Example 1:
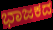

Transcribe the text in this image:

ಭಾಜಕದ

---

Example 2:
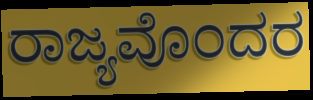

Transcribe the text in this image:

ರಾಜ್ಯವೊಂದರ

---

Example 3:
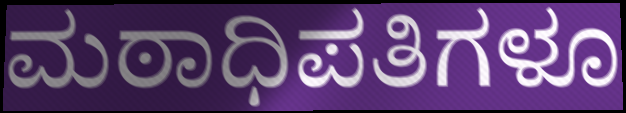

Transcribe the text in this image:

ಮಠಾಧಿಪತಿಗಳೂ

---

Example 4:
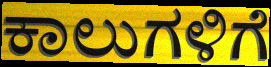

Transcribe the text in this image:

ಕಾಲುಗಳಿಗೆ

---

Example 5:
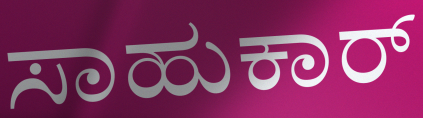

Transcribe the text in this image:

ಸಾಹುಕಾರ್